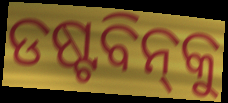
ଡଷ୍ଟବିନ୍‌କୁ